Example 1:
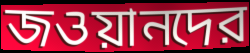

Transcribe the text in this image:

জওয়ানদের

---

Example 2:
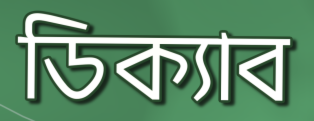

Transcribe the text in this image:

ডিক্যাব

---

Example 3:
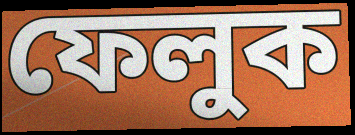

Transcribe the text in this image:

ফেলুক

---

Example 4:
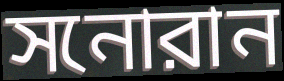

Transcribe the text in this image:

সনোরান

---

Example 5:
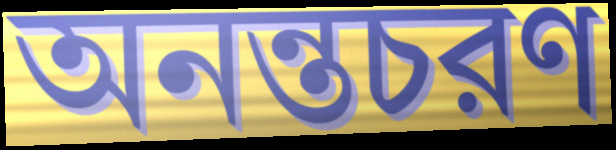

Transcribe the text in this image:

অনন্তচরণ